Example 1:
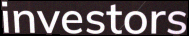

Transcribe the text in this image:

investors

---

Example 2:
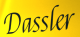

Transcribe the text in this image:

Dassler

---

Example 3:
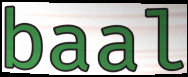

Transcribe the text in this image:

baal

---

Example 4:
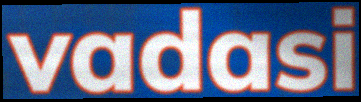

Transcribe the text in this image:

vadasi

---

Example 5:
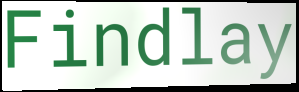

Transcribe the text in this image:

Findlay